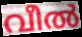
വീൽ